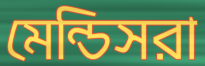
মেন্ডিসরা